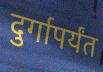
दुर्गापर्यंत